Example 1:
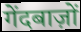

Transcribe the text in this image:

गेंदबाज़ों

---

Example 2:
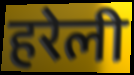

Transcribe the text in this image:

हरेली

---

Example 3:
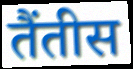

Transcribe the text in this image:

तैंतीस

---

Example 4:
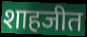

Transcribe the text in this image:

शाहजीत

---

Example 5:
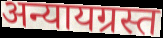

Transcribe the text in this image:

अन्यायग्रस्त